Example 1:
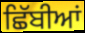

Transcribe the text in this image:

ਛਿੱਬੀਆਂ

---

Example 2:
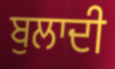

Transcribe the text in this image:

ਬੁਲਾਦੀ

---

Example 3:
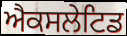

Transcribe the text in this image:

ਐਕਸਲੇਟਿਡ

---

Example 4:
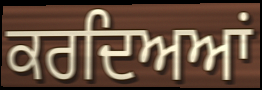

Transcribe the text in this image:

ਕਰਦਿਅਆਂ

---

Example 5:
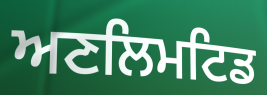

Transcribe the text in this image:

ਅਣਲਿਮਟਿਡ